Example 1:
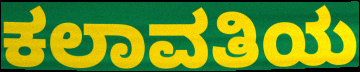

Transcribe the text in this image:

ಕಲಾವತಿಯ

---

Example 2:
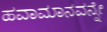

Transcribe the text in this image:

ಹವಾಮಾನವನ್ನೇ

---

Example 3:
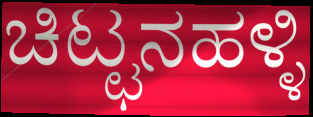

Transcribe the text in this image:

ಚಿಟ್ಟನಹಳ್ಳಿ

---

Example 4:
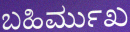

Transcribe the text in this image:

ಬಹಿರ್ಮುಖ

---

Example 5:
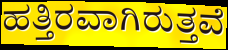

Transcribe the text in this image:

ಹತ್ತಿರವಾಗಿರುತ್ತವೆ